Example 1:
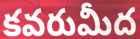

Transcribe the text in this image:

కవరుమీద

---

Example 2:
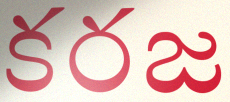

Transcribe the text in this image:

కరజ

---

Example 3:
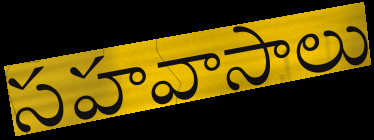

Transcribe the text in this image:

సహవాసాలు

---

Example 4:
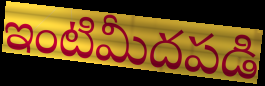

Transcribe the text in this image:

ఇంటిమీదపడి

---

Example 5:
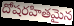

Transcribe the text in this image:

దోషరహితమైన